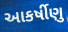
આકર્ષીણુ